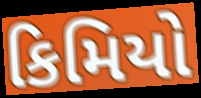
કિમિયો